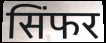
सिंफर